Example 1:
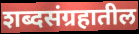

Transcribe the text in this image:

शब्दसंग्रहातील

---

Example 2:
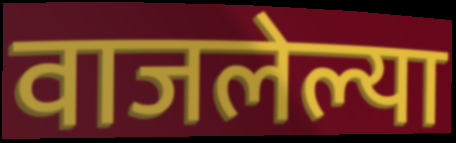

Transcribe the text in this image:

वाजलेल्या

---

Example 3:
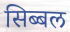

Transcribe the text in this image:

सिब्बल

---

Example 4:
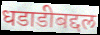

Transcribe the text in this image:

धडाडीबद्दल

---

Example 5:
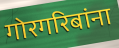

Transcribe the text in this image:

गोरगरिबांना